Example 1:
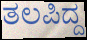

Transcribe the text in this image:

ತಲಪಿದ್ದ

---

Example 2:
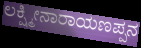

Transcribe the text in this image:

ಲಕ್ಷ್ಮೀನಾರಾಯಣಪ್ಪನ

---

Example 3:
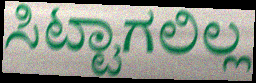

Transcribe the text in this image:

ಸಿಟ್ಟಾಗಲಿಲ್ಲ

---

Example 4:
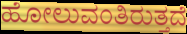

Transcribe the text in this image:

ಹೋಲುವಂತಿರುತ್ತದೆ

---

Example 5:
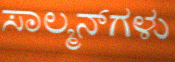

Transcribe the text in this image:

ಸಾಲ್ಮನ್‌ಗಳು